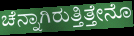
ಚೆನ್ನಾಗಿರುತ್ತಿತ್ತೇನೊ